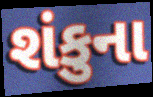
શંકુના